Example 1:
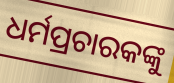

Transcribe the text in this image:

ଧର୍ମପ୍ରଚାରକଙ୍କୁ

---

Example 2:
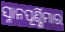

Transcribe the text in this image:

ସ୍ନାନପୂର୍ଣ୍ଣିମାର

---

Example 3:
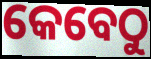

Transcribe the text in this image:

କେବେଠୁ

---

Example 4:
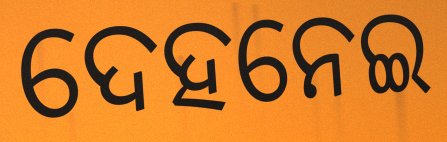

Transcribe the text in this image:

ଦେହନେଇ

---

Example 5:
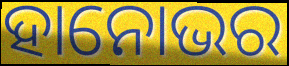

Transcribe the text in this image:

ହାନୋଭର